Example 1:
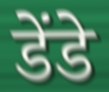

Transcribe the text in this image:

डेंडे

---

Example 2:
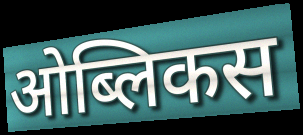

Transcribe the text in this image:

ओब्लिकस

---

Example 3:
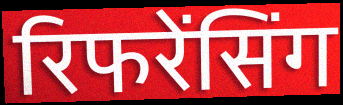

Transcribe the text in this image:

रिफरेंसिंग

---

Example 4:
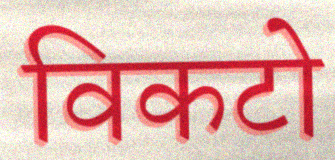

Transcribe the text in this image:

विकटो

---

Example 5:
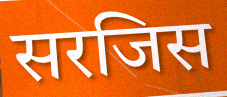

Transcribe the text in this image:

सरजिस